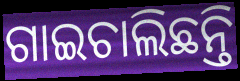
ଗାଇଚାଲିଛନ୍ତି